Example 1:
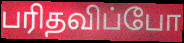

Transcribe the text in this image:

பரிதவிப்போ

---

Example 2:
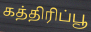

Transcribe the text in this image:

கத்திரிப்பூ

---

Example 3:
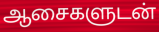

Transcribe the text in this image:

ஆசைகளுடன்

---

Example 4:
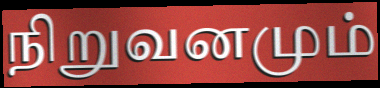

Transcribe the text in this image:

நிறுவனமும்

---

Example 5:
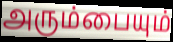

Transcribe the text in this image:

அரும்பையும்